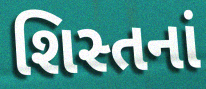
શિસ્તનાં